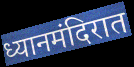
ध्यानमंदिरात